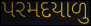
પરમદયાળુ